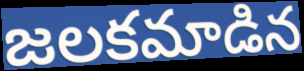
జలకమాడిన